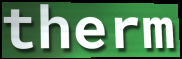
therm